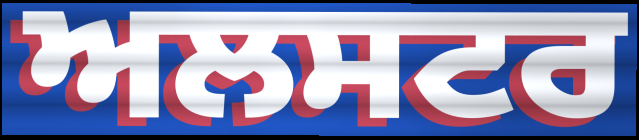
ਅਲਸਟਰ